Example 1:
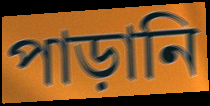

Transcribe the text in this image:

পাড়ানি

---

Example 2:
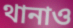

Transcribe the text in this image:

থানাও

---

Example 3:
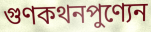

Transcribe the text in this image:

গুণকথনপুণ্যেন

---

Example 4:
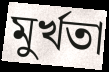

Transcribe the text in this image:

মুর্খতা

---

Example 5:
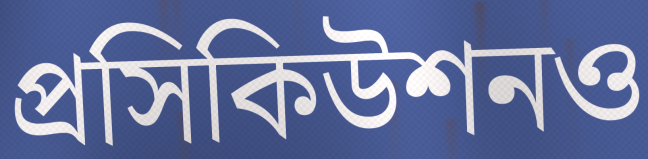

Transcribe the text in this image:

প্রসিকিউশনও